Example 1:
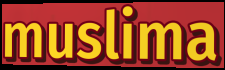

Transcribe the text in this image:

muslima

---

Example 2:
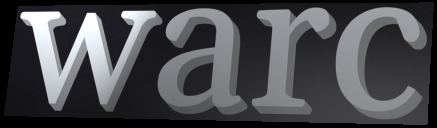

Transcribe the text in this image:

warc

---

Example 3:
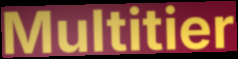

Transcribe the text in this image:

Multitier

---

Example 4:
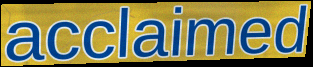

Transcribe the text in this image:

acclaimed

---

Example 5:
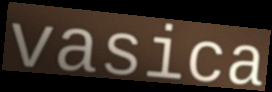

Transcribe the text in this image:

vasica